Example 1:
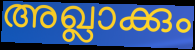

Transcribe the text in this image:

അഖ്ലാക്കും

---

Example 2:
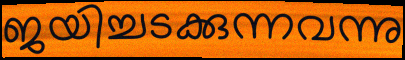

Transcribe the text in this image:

ജയിച്ചടക്കുന്നവന്നു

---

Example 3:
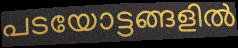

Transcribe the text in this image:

പടയോട്ടങ്ങളിൽ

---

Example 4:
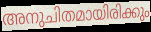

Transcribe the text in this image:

അനുചിതമായിരിക്കും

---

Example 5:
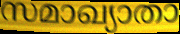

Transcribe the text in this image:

സമാഖ്യാതാ